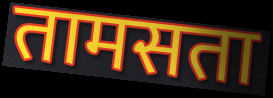
तामसता